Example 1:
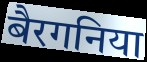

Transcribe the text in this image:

बैरगनिया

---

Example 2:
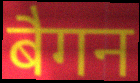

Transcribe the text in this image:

बैगन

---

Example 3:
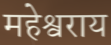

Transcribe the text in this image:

महेश्वराय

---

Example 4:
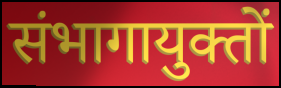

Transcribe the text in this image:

संभागायुक्तों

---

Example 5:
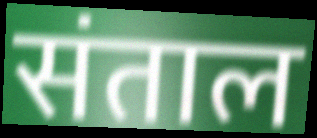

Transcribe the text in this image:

संताल